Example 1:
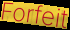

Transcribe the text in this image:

Forfeit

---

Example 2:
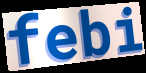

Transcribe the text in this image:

febi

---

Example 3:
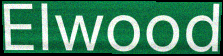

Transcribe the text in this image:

Elwood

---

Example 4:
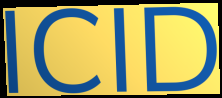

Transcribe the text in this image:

ICID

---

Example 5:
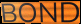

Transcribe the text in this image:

BOND